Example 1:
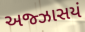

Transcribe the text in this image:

અજ્ઝાસયં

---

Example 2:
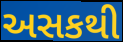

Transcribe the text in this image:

અસકથી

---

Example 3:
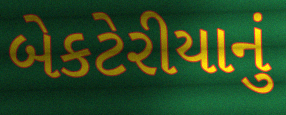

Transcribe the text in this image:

બેકટેરીયાનું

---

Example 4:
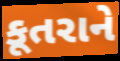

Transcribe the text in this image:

કૂતરાને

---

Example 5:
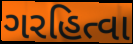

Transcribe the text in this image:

ગરહિત્વા